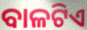
ବାଳଟିଏ